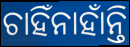
ଚାହିଁନାହାଁନ୍ତି